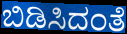
ಬಿಡಿಸಿದಂತೆ